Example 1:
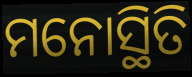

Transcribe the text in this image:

ମନୋସ୍ଥିତି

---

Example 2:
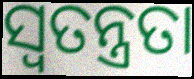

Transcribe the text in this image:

ସ୍ବତନ୍ତ୍ରତା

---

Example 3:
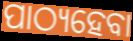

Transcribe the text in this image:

ପାଠ୍ୟହେବା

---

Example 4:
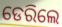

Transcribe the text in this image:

ଡେରିଲେ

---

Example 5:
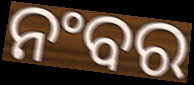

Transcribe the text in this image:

ନଂବର